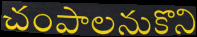
చంపాలనుకొని